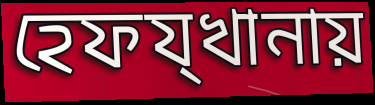
হেফয্খানায়